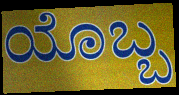
ಯೊಬ್ಬ